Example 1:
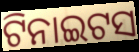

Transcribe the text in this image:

ଟିନାଇଟସ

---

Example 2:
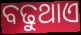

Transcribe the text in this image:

ବଢୁଥାଏ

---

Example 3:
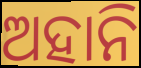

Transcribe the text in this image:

ଅହାନି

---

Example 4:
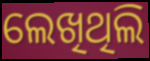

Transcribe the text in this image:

ଲେଖିଥିଲି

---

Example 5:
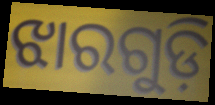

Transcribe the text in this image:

ଝାରଗୁଡ଼ି